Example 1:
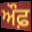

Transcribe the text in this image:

ਔਫ਼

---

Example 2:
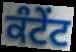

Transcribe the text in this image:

ਕੰਟੇਂਟ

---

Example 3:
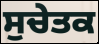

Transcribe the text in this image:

ਸੁਚੇਤਕ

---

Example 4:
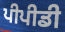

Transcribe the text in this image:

ਪੀਪੀਡੀ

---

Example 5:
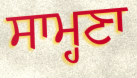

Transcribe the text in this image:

ਸਾਮ੍ਹਣਾ